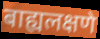
बाह्यलक्षणे